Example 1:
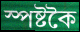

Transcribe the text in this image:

স্পষ্টকৈ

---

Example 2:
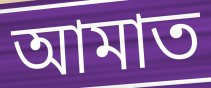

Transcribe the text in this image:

আমাত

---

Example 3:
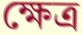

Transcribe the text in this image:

ক্ষেত্ৰ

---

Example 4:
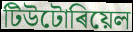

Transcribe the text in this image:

টিউটোৰিয়েল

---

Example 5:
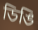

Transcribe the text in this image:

ডিঙি